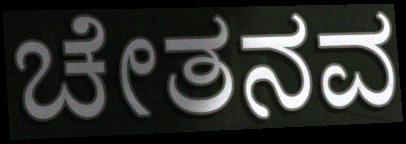
ಚೇತನವ